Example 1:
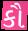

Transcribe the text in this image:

કૌ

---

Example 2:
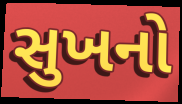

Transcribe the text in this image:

સુખનો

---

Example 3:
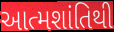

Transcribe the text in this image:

આત્મશાંતિથી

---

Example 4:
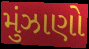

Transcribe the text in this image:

મુંઝાણો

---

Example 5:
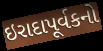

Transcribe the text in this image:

ઇરાદાપૂર્વકનો